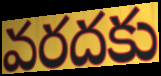
వరదకు